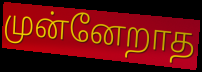
முன்னேறாத